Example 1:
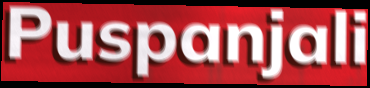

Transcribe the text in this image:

Puspanjali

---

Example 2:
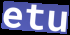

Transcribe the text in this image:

etu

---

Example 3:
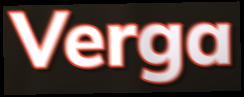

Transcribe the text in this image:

Verga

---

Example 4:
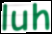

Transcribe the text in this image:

luh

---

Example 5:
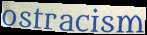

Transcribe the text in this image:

ostracism